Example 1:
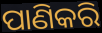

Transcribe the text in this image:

ପାଣିକରି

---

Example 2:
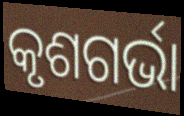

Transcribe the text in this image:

କୃଶଗର୍ଭା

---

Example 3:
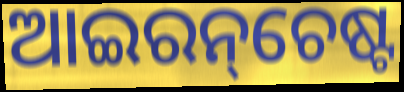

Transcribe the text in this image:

ଆଇରନ୍‌ଚେଷ୍ଟ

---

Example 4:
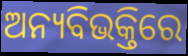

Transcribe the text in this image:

ଅନ୍ୟବିଭକ୍ତିରେ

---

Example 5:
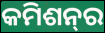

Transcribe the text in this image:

କମିଶନ୍‌ର